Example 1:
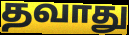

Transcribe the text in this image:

தவாது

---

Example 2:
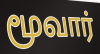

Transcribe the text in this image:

மூவார்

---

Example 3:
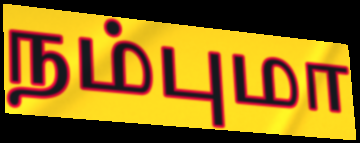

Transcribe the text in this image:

நம்புமா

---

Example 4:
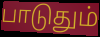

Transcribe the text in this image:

பாடுதும்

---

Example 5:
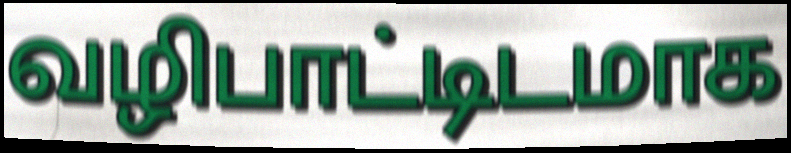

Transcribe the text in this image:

வழிபாட்டிடமாக